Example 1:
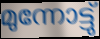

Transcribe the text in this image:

മുന്നോട്ടു്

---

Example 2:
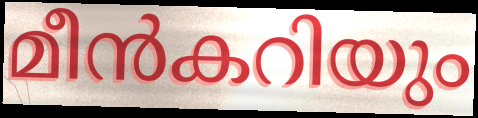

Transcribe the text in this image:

മീൻകറിയും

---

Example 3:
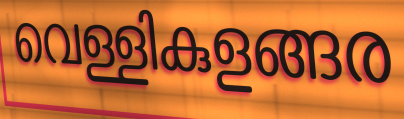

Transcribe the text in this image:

വെള്ളികുളങ്ങര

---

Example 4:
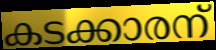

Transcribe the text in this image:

കടക്കാരന്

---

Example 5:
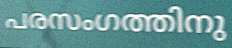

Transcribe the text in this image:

പരസംഗത്തിനു